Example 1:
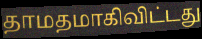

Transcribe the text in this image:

தாமதமாகிவிட்டது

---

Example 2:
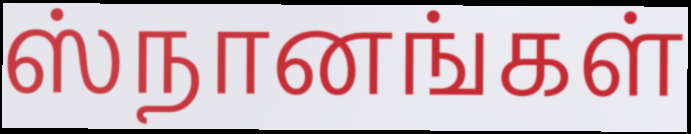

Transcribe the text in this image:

ஸ்நானங்கள்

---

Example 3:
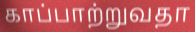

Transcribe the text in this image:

காப்பாற்றுவதா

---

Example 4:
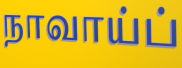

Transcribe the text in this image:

நாவாய்ப்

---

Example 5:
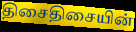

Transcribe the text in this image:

திசைதிசையின்